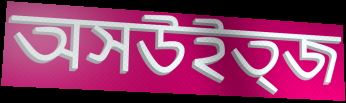
অসউইত্জ